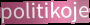
politikoje